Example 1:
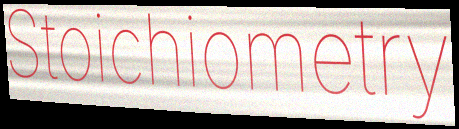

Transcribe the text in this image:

Stoichiometry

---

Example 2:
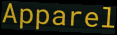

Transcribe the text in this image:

Apparel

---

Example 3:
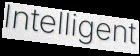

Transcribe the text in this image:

Intelligent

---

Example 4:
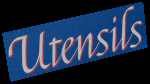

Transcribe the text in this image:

Utensils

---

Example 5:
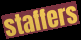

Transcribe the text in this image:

staffers